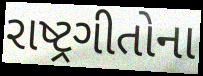
રાષ્ટ્રગીતોના